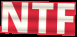
NTF